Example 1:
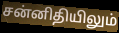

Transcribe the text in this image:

சன்னிதியிலும்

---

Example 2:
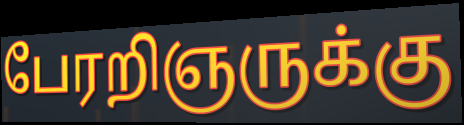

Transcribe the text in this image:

பேரறிஞருக்கு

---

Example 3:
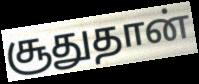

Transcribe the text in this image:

சூதுதான்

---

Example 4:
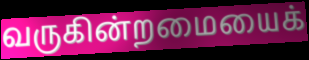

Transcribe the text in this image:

வருகின்றமையைக்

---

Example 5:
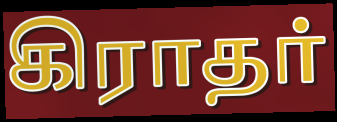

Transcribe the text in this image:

கிராதர்